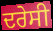
ਦਰੇਸੀ